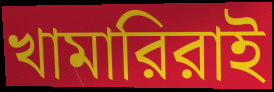
খামারিরাই